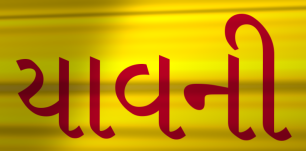
યાવની